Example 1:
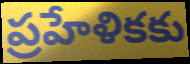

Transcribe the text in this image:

ప్రహేళికకు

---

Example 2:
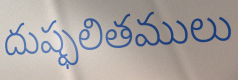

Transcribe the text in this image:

దుష్ఫలితములు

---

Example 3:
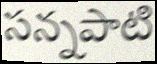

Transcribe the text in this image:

సన్నపాటి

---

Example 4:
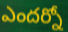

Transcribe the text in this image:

ఎందర్నో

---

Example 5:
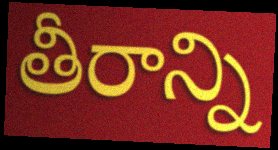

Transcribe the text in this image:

తీరాన్ని